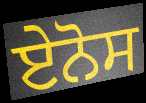
ਏਨੋਸ